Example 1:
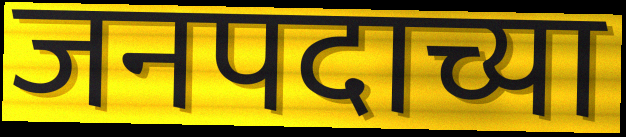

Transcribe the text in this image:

जनपदाच्या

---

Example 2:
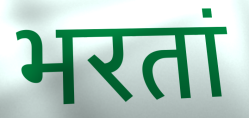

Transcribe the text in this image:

भरतां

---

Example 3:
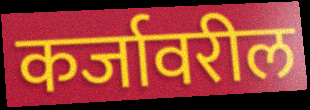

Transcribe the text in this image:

कर्जावरील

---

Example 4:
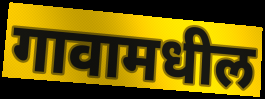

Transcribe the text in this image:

गावामधील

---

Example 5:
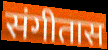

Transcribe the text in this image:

संगीतास